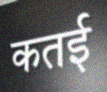
कतई